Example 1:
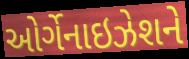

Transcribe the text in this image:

ઓર્ગેનાઇઝેશને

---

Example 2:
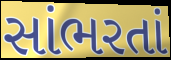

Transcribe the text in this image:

સાંભરતાં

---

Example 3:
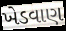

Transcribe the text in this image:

ખેડવાણ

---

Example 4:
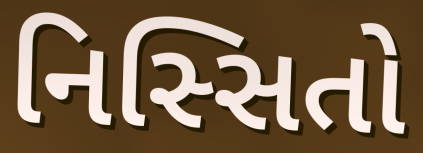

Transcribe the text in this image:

નિસ્સિતો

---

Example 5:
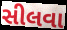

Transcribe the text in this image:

સીલવા